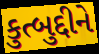
કુત્બુદ્દીને